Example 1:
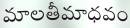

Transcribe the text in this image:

మాలతీమాధవం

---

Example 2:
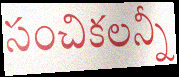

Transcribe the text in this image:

సంచికలన్నీ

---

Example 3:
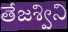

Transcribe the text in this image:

తేజశ్విని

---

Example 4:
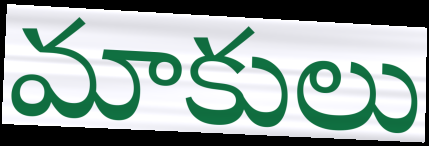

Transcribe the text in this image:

మాకులు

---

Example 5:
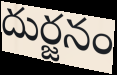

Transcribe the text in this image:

దుర్జనం